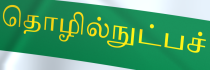
தொழில்நுட்பச்